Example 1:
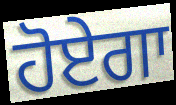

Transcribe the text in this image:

ਹੋਏਗਾ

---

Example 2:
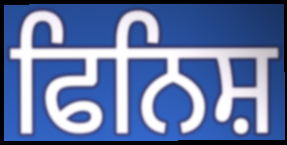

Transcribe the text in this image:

ਫਿਨਿਸ਼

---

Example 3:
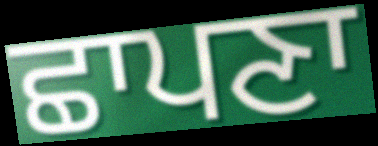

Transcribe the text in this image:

ਛਾਪਣਾ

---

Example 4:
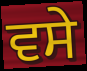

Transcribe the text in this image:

ਵਸੇ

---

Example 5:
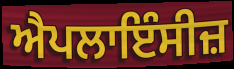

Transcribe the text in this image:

ਐਪਲਾਇੰਸੀਜ਼